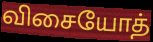
விசையோத்